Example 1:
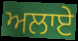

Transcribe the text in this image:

ਅਲਾਏ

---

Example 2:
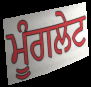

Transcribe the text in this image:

ਮੂੰਗਲੇਟ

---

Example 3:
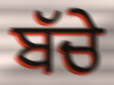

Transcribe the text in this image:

ਬੱਚੇ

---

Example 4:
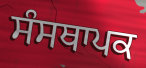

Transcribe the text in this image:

ਸੰਸਥਾਪਕ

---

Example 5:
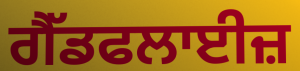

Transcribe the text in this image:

ਗੈੱਡਫਲਾਈਜ਼